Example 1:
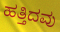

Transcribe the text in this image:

ಹತ್ತಿದವು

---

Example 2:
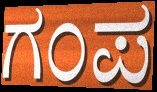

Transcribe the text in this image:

ಗಂಪ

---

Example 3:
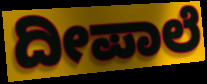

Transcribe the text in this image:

ದೀಪಾಲೆ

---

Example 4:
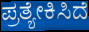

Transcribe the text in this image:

ಪ್ರತ್ಯೇಕಿಸಿದೆ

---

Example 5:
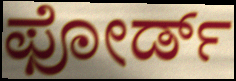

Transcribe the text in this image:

ಫೋರ್ಡ್